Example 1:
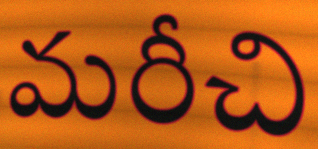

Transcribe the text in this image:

మరీచి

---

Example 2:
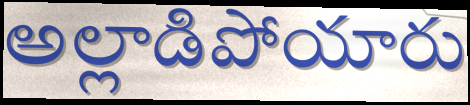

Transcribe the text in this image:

అల్లాడిపోయారు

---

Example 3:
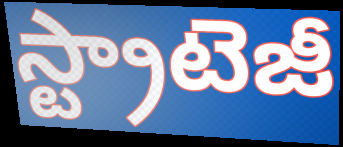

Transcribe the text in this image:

స్ట్రాటెజీ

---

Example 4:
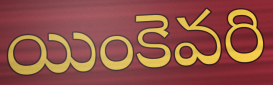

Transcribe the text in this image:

యింకెవరి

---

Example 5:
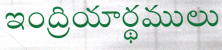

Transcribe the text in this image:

ఇంద్రియార్థములు